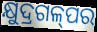
କ୍ଷୁଦ୍ରଗଳ୍‌ପର